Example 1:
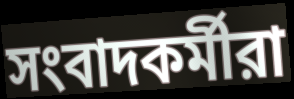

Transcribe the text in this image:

সংবাদকর্মীরা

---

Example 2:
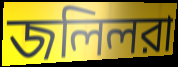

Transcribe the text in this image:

জলিলরা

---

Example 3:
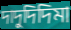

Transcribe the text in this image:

দাদুদিদিমা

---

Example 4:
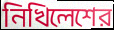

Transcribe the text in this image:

নিখিলেশের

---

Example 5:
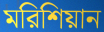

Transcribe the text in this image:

মরিশিয়ান